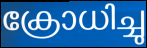
ക്രോധിച്ചു